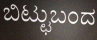
ಬಿಟ್ಟುಬಂದ